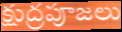
క్షుద్రపూజలు